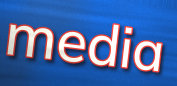
media